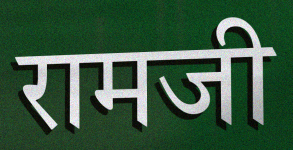
रामजी